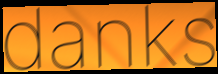
danks